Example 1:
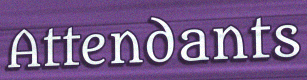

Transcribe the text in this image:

Attendants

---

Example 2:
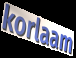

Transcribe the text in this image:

korlaam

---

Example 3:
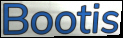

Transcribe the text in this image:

Bootis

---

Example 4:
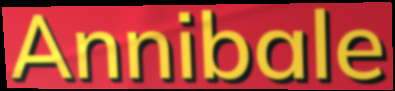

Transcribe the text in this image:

Annibale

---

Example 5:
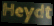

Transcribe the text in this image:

Heydt